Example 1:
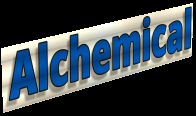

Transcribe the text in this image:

Alchemical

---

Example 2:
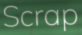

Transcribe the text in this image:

Scrap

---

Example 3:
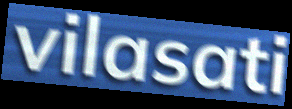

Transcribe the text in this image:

vilasati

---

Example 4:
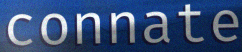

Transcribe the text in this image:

connate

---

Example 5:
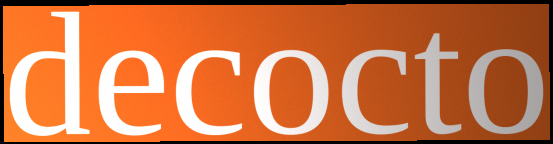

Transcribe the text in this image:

decocto